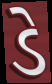
ડે